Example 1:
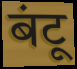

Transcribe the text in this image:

बंटू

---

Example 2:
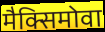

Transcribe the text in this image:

मैक्सिमोवा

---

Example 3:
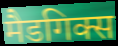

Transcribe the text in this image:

मैडगिक्स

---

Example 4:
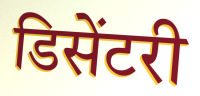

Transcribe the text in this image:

डिसेंटरी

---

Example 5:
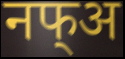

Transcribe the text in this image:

नफ्अ